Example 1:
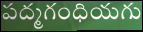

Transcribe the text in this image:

పద్మగంధియగు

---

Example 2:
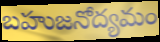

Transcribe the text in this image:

బహుజనోద్యమం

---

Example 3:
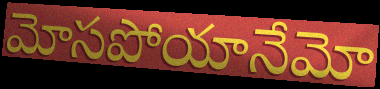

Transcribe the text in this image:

మోసపోయానేమో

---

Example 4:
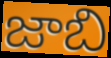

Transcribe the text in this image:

జాబి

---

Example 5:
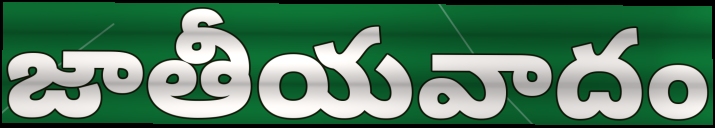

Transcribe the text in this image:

జాతీయవాదం